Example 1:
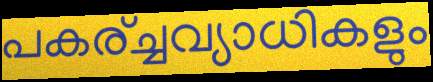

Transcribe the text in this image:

പകര്ച്ചവ്യാധികളും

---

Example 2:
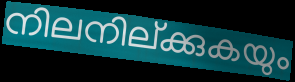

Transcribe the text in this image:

നിലനില്ക്കുകയും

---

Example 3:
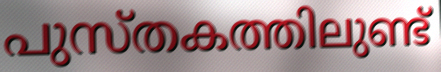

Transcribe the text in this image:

പുസ്തകത്തിലുണ്ട്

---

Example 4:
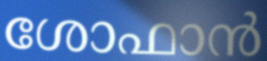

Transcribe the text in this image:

ശോഫാൻ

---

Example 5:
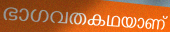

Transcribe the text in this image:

ഭാഗവതകഥയാണ്